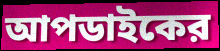
আপডাইকের